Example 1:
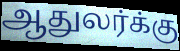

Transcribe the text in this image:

ஆதுலர்க்கு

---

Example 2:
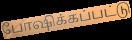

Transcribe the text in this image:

போஷிக்கப்பட்டு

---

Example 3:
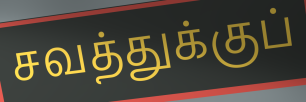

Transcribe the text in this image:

சவத்துக்குப்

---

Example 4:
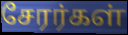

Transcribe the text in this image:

சேரர்கள்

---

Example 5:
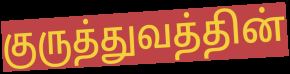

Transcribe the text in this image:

குருத்துவத்தின்